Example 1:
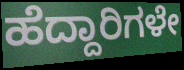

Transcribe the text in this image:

ಹೆದ್ದಾರಿಗಳೇ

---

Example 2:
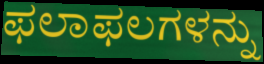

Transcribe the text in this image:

ಫಲಾಫಲಗಳನ್ನು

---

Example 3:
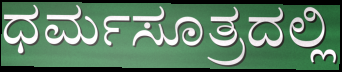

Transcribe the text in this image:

ಧರ್ಮಸೂತ್ರದಲ್ಲಿ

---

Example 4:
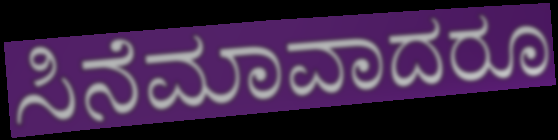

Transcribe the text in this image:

ಸಿನೆಮಾವಾದರೂ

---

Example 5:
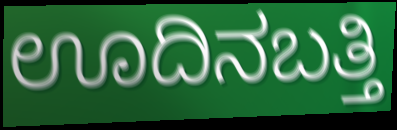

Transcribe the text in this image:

ಊದಿನಬತ್ತಿ